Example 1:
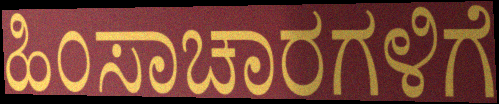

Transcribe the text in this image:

ಹಿಂಸಾಚಾರಗಳಿಗೆ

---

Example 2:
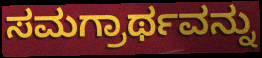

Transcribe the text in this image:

ಸಮಗ್ರಾರ್ಥವನ್ನು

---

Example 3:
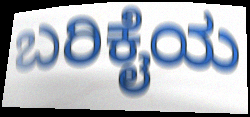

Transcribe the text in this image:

ಬರಿಕೈಯ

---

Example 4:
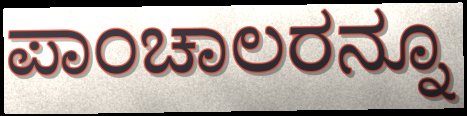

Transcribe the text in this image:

ಪಾಂಚಾಲರನ್ನೂ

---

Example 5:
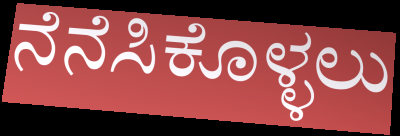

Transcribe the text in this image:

ನೆನೆಸಿಕೊಳ್ಳಲು